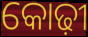
କୋଢ଼ୀ